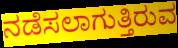
ನಡೆಸಲಾಗುತ್ತಿರುವ